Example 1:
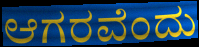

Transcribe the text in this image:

ಆಗರವೆಂದು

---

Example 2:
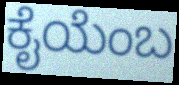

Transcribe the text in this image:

ಕೈಯೆಂಬ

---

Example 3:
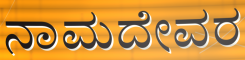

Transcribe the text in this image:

ನಾಮದೇವರ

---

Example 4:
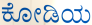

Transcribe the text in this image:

ಕೋಡಿಯ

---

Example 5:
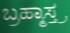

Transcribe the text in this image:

ಬ್ರಹ್ಮಾಸ್ತ್ರ